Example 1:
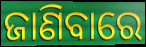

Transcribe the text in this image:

ଜାଣିବାରେ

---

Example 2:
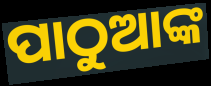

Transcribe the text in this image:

ପାଠୁଆଙ୍କ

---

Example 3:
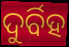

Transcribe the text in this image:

ଦୁର୍ବିହ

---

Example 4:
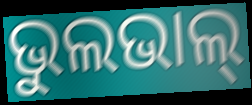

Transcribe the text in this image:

ଭୁଲଭାଲ୍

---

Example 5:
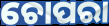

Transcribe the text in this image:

ଚୋପରା